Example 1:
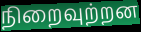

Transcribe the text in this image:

நிறைவுற்றன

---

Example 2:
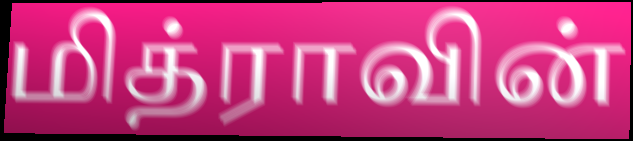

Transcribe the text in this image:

மித்ராவின்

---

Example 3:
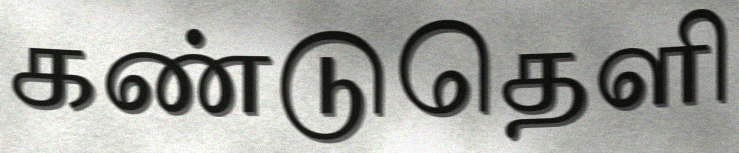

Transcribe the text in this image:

கண்டுதெளி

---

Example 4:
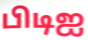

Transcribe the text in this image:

பிடிஐ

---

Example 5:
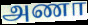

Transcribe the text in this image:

அணா